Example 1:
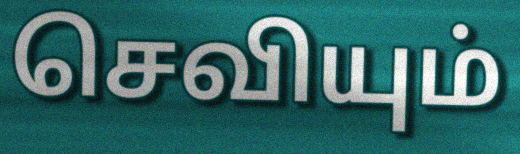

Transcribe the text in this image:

செவியும்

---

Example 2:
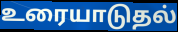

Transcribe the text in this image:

உரையாடுதல்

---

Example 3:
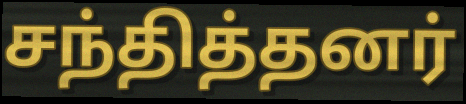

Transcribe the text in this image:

சந்தித்தனர்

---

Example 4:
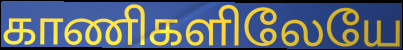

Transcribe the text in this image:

காணிகளிலேயே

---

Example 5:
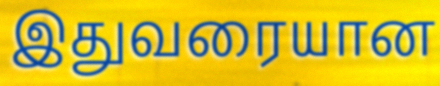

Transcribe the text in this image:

இதுவரையான